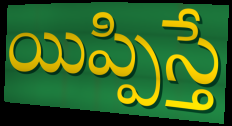
యిప్పిస్తే